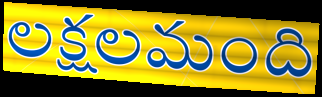
లక్షలమంది